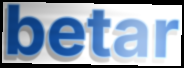
betar